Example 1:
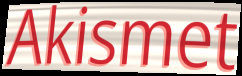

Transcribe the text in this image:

Akismet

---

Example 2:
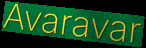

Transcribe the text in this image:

Avaravar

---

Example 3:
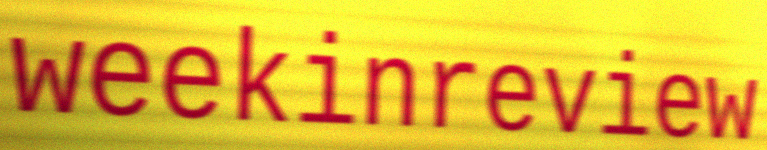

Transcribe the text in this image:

weekinreview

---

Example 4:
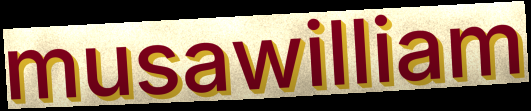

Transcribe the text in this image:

musawilliam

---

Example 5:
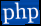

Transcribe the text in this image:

php